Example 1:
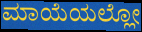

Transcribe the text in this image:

ಮಾಯೆಯಲ್ಲೋ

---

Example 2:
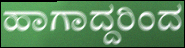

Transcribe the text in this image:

ಹಾಗಾದ್ದರಿಂದ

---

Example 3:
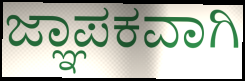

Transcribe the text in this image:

ಜ್ಞಾಪಕವಾಗಿ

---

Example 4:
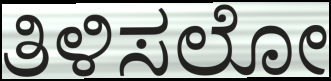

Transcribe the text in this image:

ತಿಳಿಸಲೋ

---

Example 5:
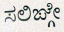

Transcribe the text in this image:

ಸಲಿಙ್ಗೇ